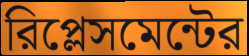
রিপ্লেসমেন্টের